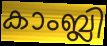
കാംബ്ലി